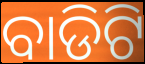
ବାଡିଟି